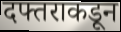
दफ्तराकडून